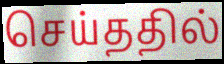
செய்ததில்